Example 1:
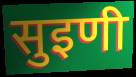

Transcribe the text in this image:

सुइणी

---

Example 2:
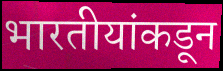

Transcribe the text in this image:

भारतीयांकडून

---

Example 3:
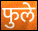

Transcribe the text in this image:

फुले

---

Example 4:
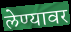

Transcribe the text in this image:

लेण्यावर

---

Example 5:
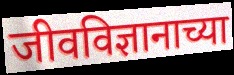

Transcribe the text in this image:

जीवविज्ञानाच्या